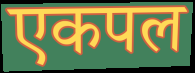
एकपल